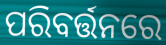
ପରିବର୍ତ୍ତନରେ